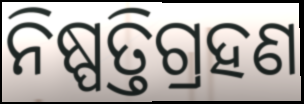
ନିଷ୍ପତ୍ତିଗ୍ରହଣ